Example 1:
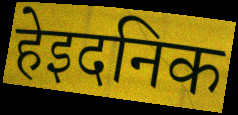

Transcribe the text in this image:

हेइदनिक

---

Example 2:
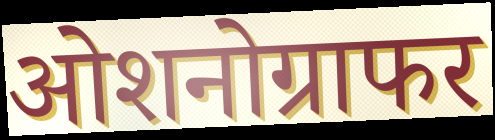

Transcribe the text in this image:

ओशनोग्राफर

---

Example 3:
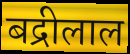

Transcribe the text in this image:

बद्रीलाल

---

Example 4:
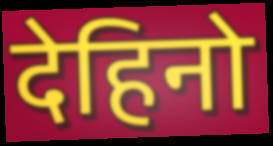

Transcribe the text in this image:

देहिनो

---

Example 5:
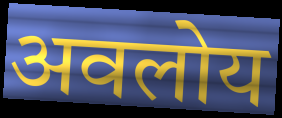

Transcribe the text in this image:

अवलोय